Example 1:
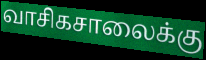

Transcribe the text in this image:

வாசிகசாலைக்கு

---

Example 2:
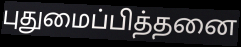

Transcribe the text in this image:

புதுமைப்பித்தனை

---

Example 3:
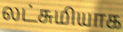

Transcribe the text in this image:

லட்சுமியாக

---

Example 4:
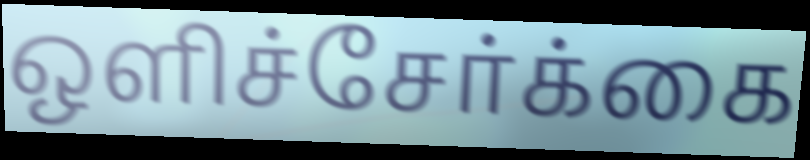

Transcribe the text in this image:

ஒளிச்சேர்க்கை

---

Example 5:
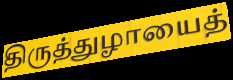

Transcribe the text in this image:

திருத்துழாயைத்